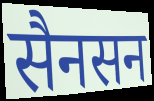
सैनसन